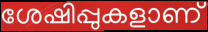
ശേഷിപ്പുകളാണ്